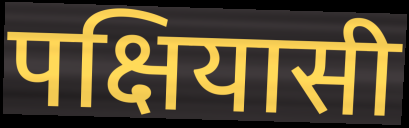
पक्षियासी